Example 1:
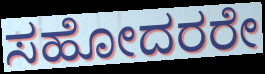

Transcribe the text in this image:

ಸಹೋದರರೇ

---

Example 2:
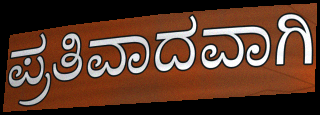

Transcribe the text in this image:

ಪ್ರತಿವಾದವಾಗಿ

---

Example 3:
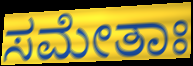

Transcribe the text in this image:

ಸಮೇತಾಃ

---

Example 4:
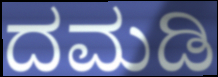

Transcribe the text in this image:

ದಮಡಿ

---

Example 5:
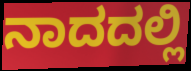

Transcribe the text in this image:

ನಾದದಲ್ಲಿ